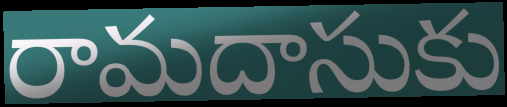
రామదాసుకు